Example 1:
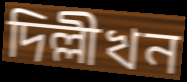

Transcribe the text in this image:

দিল্লীখন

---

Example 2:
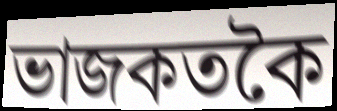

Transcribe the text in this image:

ভাজকতকৈ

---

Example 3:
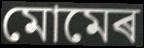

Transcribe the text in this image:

মোমেৰ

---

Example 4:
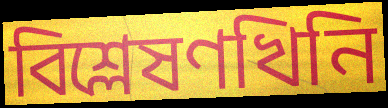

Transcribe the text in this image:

বিশ্লেষণখিনি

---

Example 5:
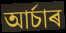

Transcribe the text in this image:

আৰ্চাৰ